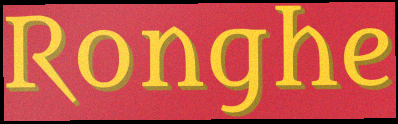
Ronghe